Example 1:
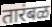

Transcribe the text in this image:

तारंबळ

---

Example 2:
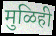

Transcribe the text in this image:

मुळिही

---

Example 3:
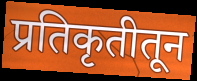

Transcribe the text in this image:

प्रतिकृतीतून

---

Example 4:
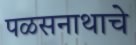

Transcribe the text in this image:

पळसनाथाचे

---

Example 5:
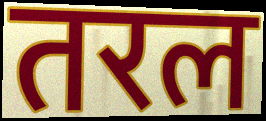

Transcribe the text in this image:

तरल